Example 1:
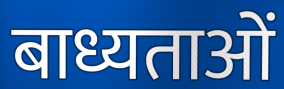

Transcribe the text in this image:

बाध्यताओं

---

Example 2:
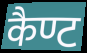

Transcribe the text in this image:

कैण्ट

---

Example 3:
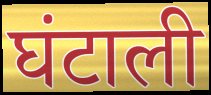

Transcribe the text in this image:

घंटाली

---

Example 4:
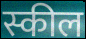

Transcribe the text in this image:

स्‍कील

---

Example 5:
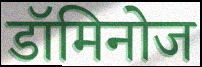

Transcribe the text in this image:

डॉमिनोज